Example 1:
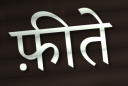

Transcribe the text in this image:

फ़ीते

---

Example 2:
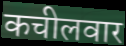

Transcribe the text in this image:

कचीलवार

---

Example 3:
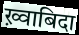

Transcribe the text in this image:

ख़्वाबिदा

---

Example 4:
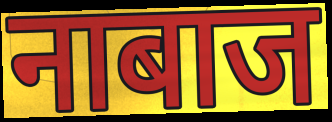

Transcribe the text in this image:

नाबाज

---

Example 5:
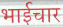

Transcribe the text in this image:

भाईचार